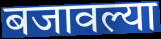
बजावल्या